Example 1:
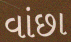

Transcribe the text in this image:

વાંછા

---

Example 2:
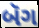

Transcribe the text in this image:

બૅગ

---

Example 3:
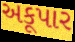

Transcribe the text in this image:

અકૂપાર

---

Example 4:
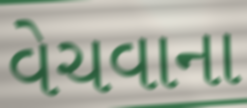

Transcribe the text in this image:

વેચવાના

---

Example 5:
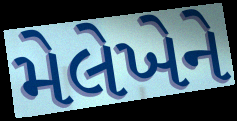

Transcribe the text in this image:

મેલેખેને